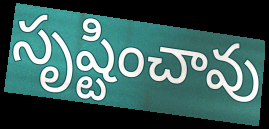
సృష్టించావు